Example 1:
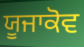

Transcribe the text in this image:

ਯੂਜਾਕੋਵ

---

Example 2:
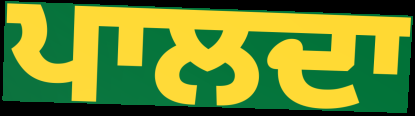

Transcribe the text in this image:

ਪਾਲਦਾ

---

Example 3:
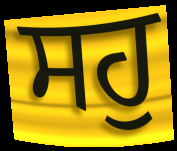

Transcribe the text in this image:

ਸਹੁ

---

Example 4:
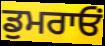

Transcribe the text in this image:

ਡੁਮਰਾਓਂ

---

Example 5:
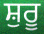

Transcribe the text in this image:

ਸ਼ੁਰੂ